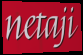
netaji